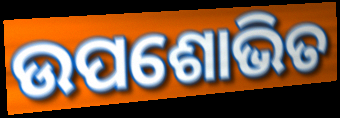
ଉପଶୋଭିତ